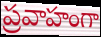
ప్రవాహంగా